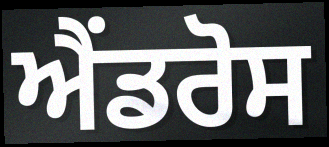
ਐਂਡਰੋਸ